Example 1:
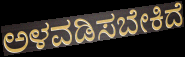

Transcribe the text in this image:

ಅಳವಡಿಸಬೇಕಿದೆ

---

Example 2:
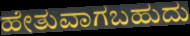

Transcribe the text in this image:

ಹೇತುವಾಗಬಹುದು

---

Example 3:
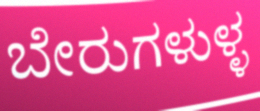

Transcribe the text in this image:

ಬೇರುಗಳುಳ್ಳ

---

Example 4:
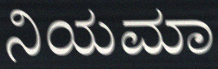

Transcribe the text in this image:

ನಿಯಮಾ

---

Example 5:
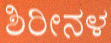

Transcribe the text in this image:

ಶಿರೀನಳ